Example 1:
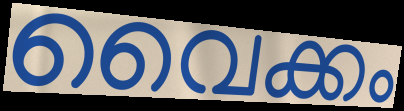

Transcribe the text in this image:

വൈക്കം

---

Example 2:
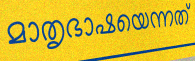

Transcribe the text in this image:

മാതൃഭാഷയെന്നത്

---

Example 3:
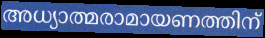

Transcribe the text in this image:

അധ്യാത്മരാമായണത്തിന്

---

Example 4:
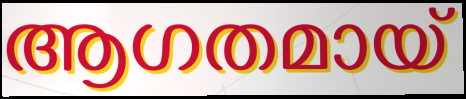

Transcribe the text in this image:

ആഗതമായ്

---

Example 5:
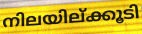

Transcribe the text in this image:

നിലയില്ക്കൂടി